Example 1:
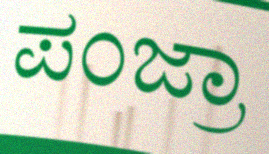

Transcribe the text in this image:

ಪಂಜ್ರಾ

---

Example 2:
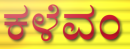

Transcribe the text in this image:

ಕಳೆವಂ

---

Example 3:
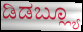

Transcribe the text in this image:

ಡಿಡಬ್ಲ್ಯೂ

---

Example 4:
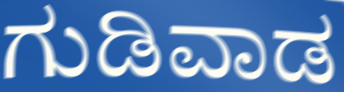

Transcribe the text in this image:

ಗುಡಿವಾಡ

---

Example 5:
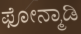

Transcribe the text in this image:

ಫೋನ್ಮಾಡಿ